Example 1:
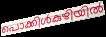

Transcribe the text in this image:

പൊക്കിൾകുഴിയിൽ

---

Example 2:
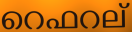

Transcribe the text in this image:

റെഫറല്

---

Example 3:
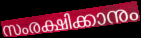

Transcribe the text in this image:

സംരക്ഷിക്കാനും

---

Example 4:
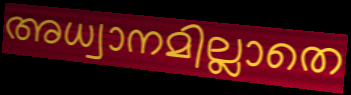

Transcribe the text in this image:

അധ്വാനമില്ലാതെ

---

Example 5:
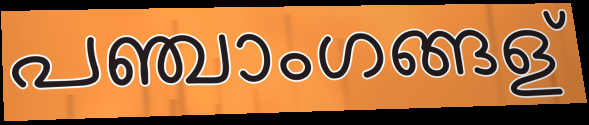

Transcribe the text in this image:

പഞ്ചാംഗങ്ങള്